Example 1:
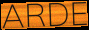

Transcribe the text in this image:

ARDE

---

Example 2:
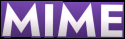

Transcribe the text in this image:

MIME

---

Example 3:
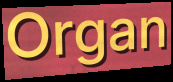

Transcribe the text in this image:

Organ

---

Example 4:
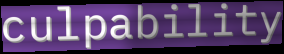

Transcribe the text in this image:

culpability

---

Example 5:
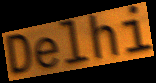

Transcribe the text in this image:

Delhi